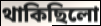
থাকিছিলো